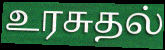
உரசுதல்